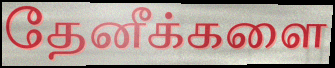
தேனீக்களை